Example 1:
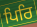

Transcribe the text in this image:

ਪਿਰਿ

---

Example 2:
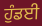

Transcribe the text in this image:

ਹੁੰਡਈ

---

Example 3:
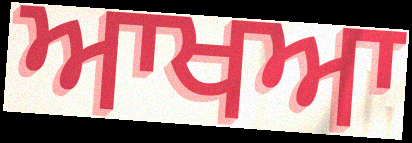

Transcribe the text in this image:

ਆਖਆ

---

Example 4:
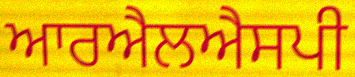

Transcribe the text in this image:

ਆਰਐਲਐਸਪੀ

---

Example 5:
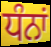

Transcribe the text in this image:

ਧੰਨਾਂ